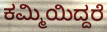
ಕಮ್ಮಿಯಿದ್ದರೆ